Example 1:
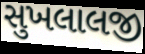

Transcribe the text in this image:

સુખલાલજી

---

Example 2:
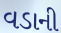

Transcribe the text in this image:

વડાની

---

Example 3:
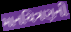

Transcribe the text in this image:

માનચિત્રણની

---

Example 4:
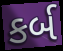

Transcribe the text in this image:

કર્બ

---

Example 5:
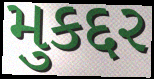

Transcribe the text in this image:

મુકદ્દર